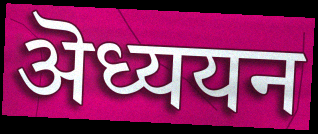
ऄध्ययन